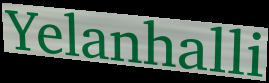
Yelanhalli